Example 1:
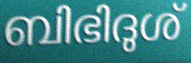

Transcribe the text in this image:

ബിഭിദുശ്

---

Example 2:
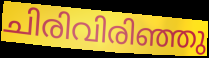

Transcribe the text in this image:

ചിരിവിരിഞ്ഞു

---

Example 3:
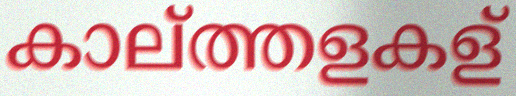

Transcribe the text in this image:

കാല്ത്തളകള്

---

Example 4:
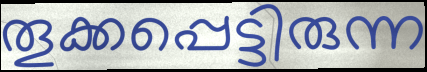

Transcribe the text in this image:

തൂക്കപ്പെട്ടിരുന്ന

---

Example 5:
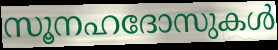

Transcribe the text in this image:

സൂനഹദോസുകൾ